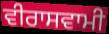
ਵੀਰਾਸਵਾਮੀ